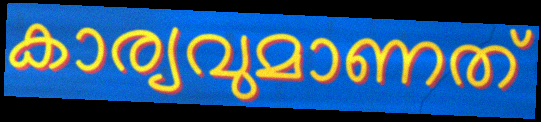
കാര്യവുമാണത്